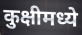
कुक्षीमध्ये